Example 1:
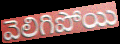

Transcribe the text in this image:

వెలిగిపోయి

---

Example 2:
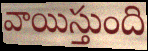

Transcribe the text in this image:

వాయిస్తుంది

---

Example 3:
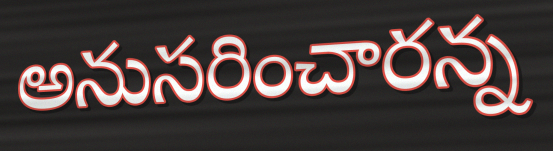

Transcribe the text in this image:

అనుసరించారన్న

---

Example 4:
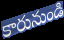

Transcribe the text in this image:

కారునుండి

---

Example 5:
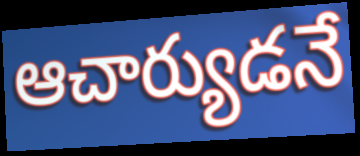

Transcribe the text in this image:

ఆచార్యుడనే